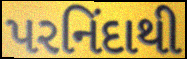
પરનિંદાથી